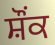
ਸ਼ੌੰਕ